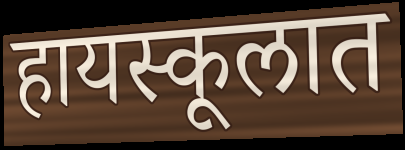
हायस्कूलात